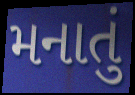
મનાતું